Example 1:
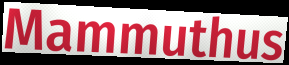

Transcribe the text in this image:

Mammuthus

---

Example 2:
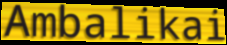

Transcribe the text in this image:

Ambalikai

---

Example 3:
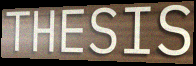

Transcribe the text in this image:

THESIS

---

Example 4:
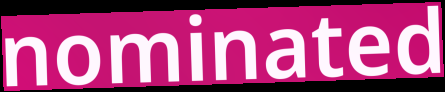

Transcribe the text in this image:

nominated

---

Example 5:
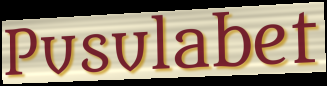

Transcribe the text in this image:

Pusulabet